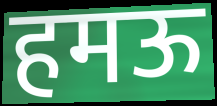
हमऊ